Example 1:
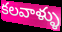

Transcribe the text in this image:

కలవాళ్ళు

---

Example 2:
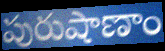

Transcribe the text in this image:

పురుషాణాం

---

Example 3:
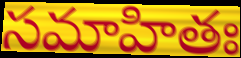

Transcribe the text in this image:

సమాహితః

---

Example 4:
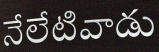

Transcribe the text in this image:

నేలేటివాడు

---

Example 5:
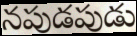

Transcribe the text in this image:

నపుడపుడు